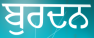
ਬੁਰਦਨ